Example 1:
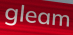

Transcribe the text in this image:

gleam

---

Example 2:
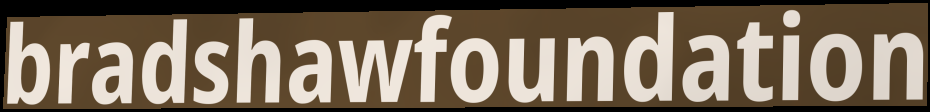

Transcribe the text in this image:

bradshawfoundation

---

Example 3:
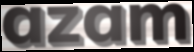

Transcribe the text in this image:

azam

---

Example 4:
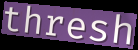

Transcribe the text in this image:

thresh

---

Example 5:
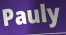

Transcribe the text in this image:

Pauly